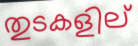
തുടകളില്